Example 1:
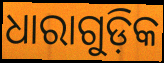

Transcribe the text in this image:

ଧାରାଗୁଡ଼ିକ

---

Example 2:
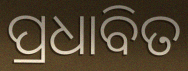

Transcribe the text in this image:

ପ୍ରଧାବିତ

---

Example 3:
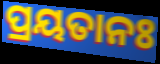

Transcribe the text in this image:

ପ୍ରୟତାନଃ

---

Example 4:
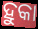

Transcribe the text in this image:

ହୁକା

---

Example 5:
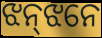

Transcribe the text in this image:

ଝନ୍‌ଝନେ